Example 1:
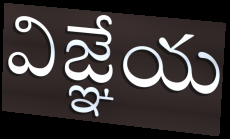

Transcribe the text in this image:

విజ్ఞేయ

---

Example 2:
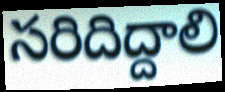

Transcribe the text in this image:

సరిదిద్దాలి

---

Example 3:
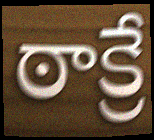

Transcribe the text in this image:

ఠాక్రే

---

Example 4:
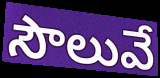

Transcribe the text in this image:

సౌలువే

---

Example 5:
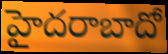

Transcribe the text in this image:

హైదరాబాదో